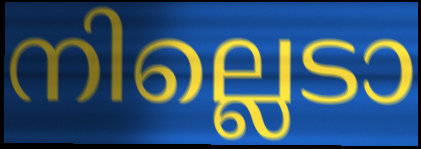
നില്ലെടാ